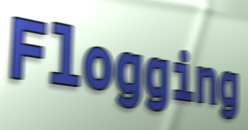
Flogging